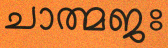
ചാത്മജഃ